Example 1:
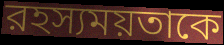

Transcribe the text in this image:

রহস্যময়তাকে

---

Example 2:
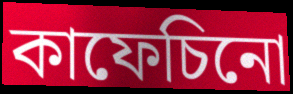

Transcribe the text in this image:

কাফেচিনো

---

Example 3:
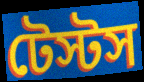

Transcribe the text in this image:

টেস্টস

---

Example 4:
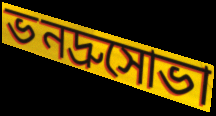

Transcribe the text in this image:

ভনদ্রুসোভা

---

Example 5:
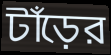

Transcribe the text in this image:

টাঁড়ের